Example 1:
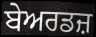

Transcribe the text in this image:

ਬੇਅਰਡਜ਼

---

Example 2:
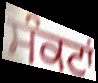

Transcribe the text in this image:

ਸੰਕਟਾਂ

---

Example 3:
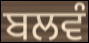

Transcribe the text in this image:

ਬਲਵੰ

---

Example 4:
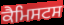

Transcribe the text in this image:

ਕੈਮਿਸਟਸ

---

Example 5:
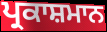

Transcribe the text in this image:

ਪ੍ਰਕਾਸ਼ਮਾਨ